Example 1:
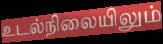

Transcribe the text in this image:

உடல்நிலையிலும்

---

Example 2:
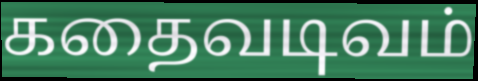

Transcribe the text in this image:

கதைவடிவம்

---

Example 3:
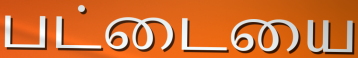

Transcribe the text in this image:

பட்டையை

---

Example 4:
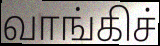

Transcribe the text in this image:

வாங்கிச்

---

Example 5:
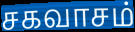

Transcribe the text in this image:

சகவாசம்